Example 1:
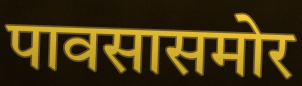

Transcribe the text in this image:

पावसासमोर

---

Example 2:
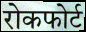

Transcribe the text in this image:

रोकफोर्ट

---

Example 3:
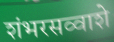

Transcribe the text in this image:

शंभरसव्वाशे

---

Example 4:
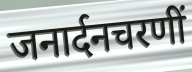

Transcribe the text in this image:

जनार्दनचरणीं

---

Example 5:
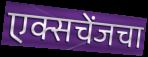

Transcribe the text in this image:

एक्सचेंजचा